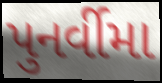
પુનર્વીમા